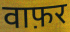
वाफ़र